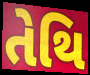
તેથિ